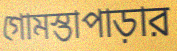
গোমস্তাপাড়ার